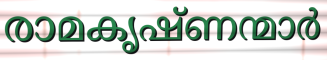
രാമകൃഷ്ണന്മാർ